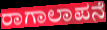
ರಾಗಾಲಾಪನೆ